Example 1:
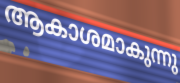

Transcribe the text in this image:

ആകാശമാകുന്നു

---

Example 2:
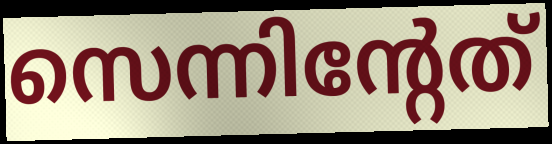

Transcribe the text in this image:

സെന്നിന്റേത്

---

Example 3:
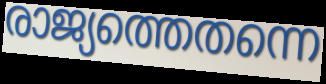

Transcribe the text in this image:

രാജ്യത്തെതന്നെ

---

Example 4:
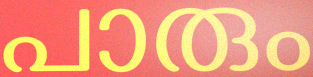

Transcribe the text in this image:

പാരും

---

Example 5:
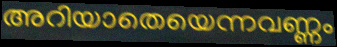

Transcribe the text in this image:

അറിയാതെയെന്നവണ്ണം